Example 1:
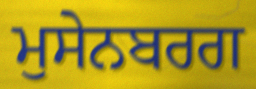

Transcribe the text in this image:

ਮੁਸੇਨਬਰਗ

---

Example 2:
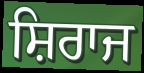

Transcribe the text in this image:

ਸ਼ਿਰਾਜ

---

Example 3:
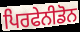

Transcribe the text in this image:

ਪਿਰਫੇਨੀਡੋਨ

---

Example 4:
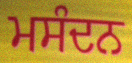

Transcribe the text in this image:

ਮਸੰਦਨ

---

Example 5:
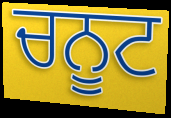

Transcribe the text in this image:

ਚਨੂਟ